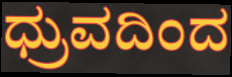
ಧ್ರುವದಿಂದ